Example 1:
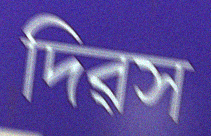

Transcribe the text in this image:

দিৱস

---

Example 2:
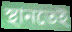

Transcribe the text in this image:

স্থানতেই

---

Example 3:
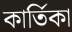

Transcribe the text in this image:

কাৰ্তিকা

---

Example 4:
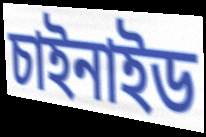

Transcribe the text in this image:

চাইনাইড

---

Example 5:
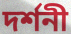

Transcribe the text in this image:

দৰ্শনী